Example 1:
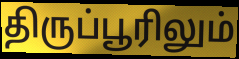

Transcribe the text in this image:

திருப்பூரிலும்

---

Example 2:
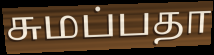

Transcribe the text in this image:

சுமப்பதா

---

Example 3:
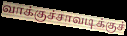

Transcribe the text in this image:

வாக்குச்சாவடிக்குச்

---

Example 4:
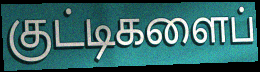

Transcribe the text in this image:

குட்டிகளைப்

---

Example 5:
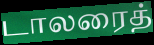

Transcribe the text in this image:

டாலரைத்